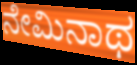
ನೇಮಿನಾಥ